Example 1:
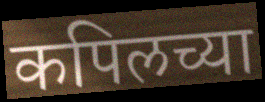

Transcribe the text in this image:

कपिलच्या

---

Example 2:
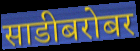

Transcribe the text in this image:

साडीबरोबर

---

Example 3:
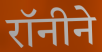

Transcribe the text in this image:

रॉनीने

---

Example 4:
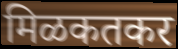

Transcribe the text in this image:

मिळकतकर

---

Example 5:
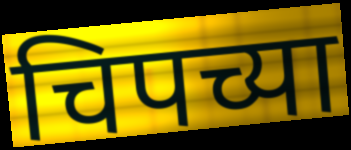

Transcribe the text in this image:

चिपच्या